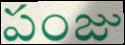
పంజు